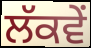
ਲੱਕਵੇਂ